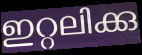
ഇറ്റലിക്കു